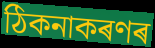
ঠিকনাকৰণৰ